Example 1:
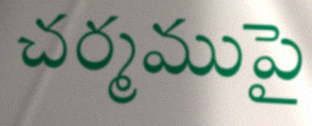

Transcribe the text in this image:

చర్మముపై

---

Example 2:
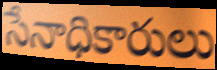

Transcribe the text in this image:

సేనాధికారులు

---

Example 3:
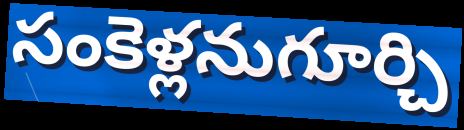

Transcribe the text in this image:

సంకెళ్లనుగూర్చి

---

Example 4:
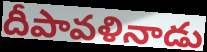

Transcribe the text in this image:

దీపావళినాడు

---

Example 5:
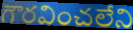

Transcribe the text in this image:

గౌరవించలేని